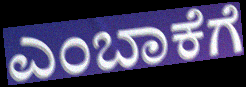
ಎಂಬಾಕೆಗೆ